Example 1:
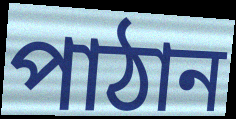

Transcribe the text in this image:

পাঠান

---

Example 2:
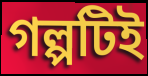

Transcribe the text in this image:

গল্পটিই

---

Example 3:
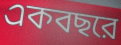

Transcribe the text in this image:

একবছরে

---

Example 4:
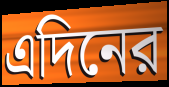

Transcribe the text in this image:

এদিনের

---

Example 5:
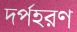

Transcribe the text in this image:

দর্পহরণ